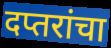
दप्तरांचा